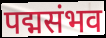
पद्मसंभव